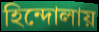
হিন্দোলায়